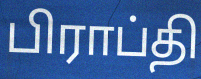
பிராப்தி